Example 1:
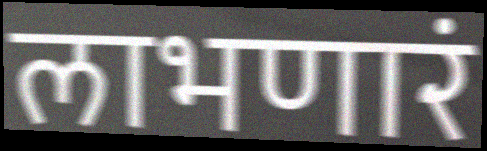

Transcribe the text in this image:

लाभणारं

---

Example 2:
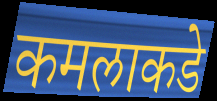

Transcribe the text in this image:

कमलाकडे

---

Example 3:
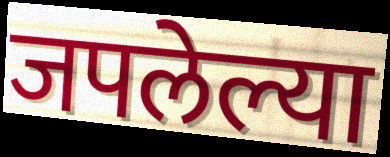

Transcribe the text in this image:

जपलेल्या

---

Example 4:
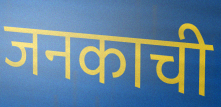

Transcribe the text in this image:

जनकाची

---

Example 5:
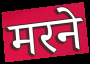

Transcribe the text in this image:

मरने